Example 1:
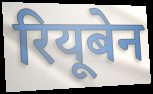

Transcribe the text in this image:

रियूबेन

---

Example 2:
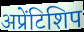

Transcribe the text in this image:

अप्रेंटिशिप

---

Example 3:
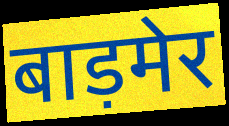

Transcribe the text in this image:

बाड़मेर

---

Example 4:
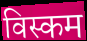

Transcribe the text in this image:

विस्कम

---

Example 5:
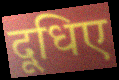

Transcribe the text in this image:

दूधिए